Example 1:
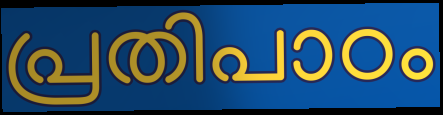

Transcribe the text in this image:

പ്രതിപാഠം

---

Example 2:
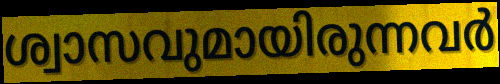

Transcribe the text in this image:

ശ്വാസവുമായിരുന്നവർ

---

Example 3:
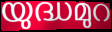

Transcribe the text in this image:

യുദ്ധമുറ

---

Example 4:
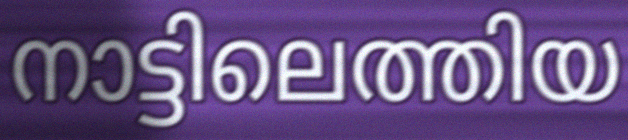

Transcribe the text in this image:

നാട്ടിലെത്തിയ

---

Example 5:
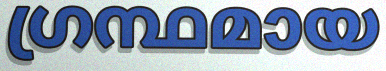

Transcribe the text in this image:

ഗ്രന്ഥമായ